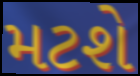
મટશે